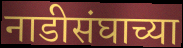
नाडीसंघाच्या